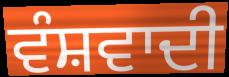
ਵੰਸ਼ਵਾਦੀ